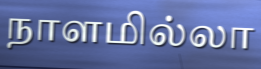
நாளமில்லா